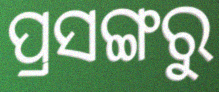
ପ୍ରସଙ୍ଗରୁ